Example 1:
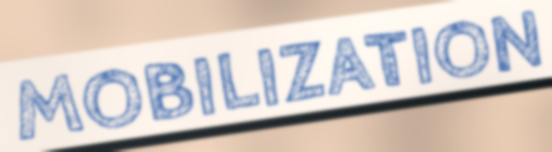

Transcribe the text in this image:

MOBILIZATION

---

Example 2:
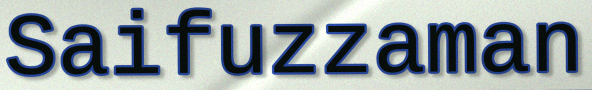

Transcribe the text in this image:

Saifuzzaman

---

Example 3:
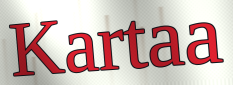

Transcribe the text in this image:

Kartaa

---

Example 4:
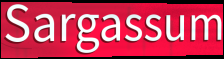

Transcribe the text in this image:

Sargassum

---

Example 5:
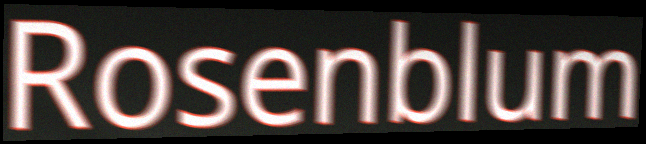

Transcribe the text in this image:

Rosenblum